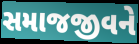
સમાજજીવને